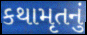
કથામૃતનું